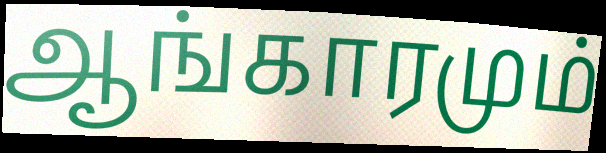
ஆங்காரமும்